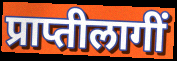
प्राप्तीलागीं